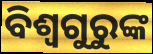
ବିଶ୍ୱଗୁରୁଙ୍କ